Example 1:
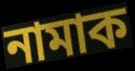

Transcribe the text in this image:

নামাক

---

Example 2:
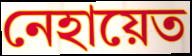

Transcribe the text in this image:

নেহায়েত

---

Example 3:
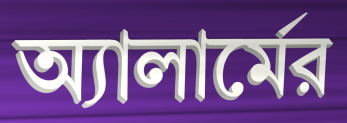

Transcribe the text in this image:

অ্যালার্মের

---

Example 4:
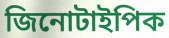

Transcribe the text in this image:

জিনোটাইপিক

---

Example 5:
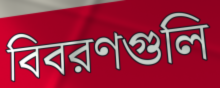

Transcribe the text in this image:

বিবরণগুলি